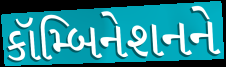
કૉમ્બિનેશનને